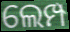
ଲେମ୍ପ